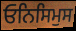
ਓਨਿਸਿਮੁਸ